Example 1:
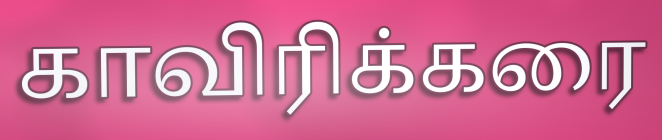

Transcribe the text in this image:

காவிரிக்கரை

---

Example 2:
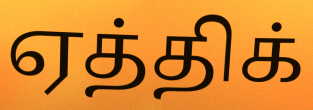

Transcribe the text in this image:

ஏத்திக்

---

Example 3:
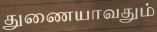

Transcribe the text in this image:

துணையாவதும்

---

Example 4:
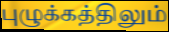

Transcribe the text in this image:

புழுக்கத்திலும்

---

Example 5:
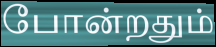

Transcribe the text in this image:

போன்றதும்